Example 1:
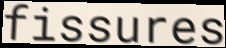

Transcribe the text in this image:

fissures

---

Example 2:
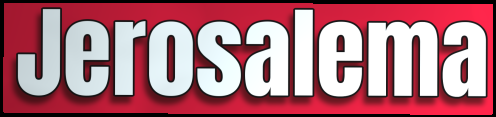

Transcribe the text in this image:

Jerosalema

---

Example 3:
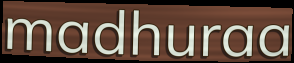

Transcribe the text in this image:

madhuraa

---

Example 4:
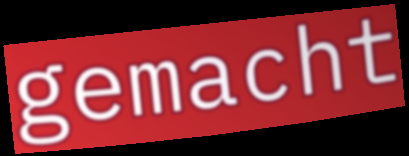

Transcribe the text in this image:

gemacht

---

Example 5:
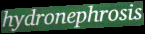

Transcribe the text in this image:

hydronephrosis